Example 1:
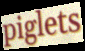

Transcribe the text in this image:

piglets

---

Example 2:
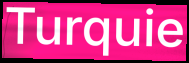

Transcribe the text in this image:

Turquie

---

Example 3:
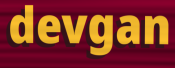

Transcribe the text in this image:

devgan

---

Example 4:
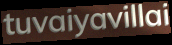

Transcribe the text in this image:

tuvaiyavillai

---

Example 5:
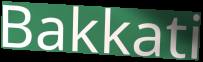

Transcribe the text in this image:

Bakkati